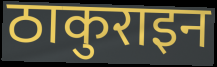
ठाकुराइन